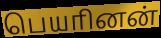
பெயரினன்